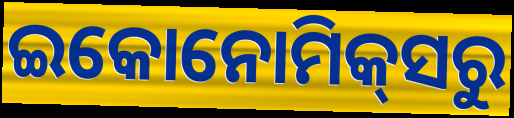
ଇକୋନୋମିକ୍‌ସରୁ